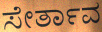
ಸೇರ್ತಾವ